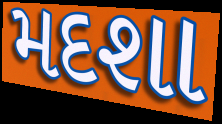
મદશા